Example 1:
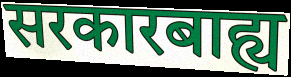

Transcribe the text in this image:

सरकारबाह्य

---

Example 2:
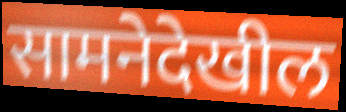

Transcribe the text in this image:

सामनेदेखील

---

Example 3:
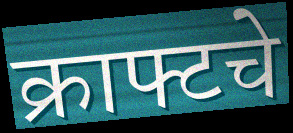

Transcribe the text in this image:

क्राफ्टचे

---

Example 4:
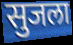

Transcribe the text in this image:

सुजला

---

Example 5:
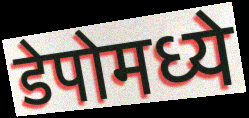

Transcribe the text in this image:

डेपोमध्ये